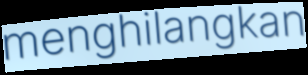
menghilangkan